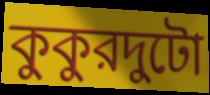
কুকুরদুটো